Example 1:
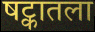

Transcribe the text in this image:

षट्कातला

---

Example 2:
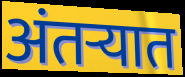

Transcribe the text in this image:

अंतऱ्यात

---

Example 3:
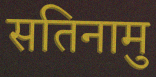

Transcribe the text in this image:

सतिनामु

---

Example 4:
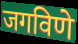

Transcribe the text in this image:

जगविणे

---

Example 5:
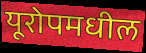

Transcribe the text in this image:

यूरोपमधील